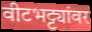
वीटभट्ट्यांवर